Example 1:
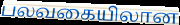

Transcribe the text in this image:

பலவகையிலான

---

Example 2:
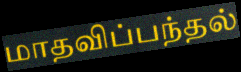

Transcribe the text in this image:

மாதவிப்பந்தல்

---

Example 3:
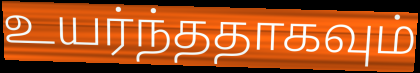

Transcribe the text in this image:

உயர்ந்ததாகவும்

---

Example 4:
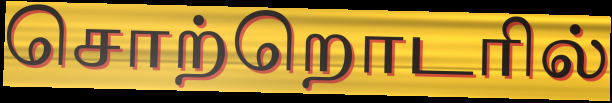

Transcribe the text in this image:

சொற்றொடரில்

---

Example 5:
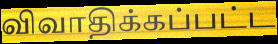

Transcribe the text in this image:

விவாதிக்கப்பட்ட